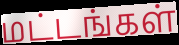
மட்டங்கள்